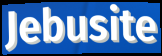
Jebusite